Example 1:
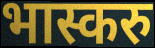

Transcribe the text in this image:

भास्करु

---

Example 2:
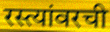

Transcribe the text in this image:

रस्त्यांवरची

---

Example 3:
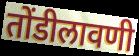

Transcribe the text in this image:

तोंडीलावणी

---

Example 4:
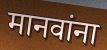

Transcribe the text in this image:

मानवांना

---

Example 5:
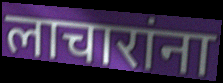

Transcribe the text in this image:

लाचारांना